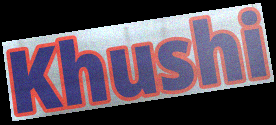
Khushi